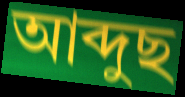
আব্দুছ